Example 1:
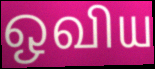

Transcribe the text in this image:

ஒவிய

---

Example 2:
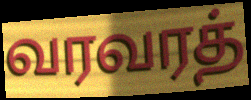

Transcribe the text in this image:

வரவரத்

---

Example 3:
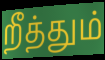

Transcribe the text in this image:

றீத்தும்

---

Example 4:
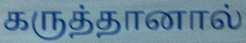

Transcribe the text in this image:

கருத்தானால்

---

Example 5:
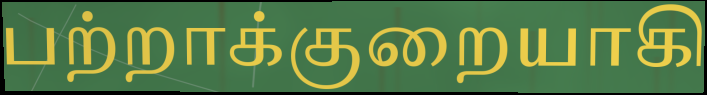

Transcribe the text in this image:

பற்றாக்குறையாகி